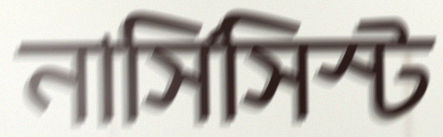
নার্সিসিস্ট